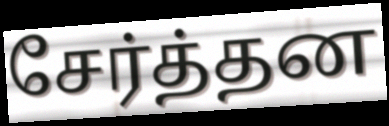
சேர்த்தன